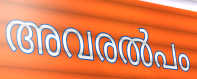
അവരൽപം